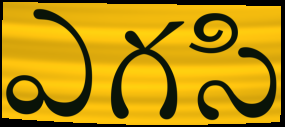
ఎగసి